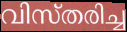
വിസ്തരിച്ച